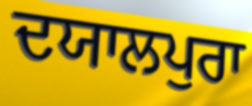
ਦਯਾਲਪੁਰਾ